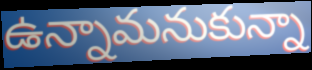
ఉన్నామనుకున్నా